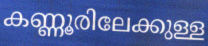
കണ്ണൂരിലേക്കുള്ള